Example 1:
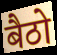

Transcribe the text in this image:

बैठो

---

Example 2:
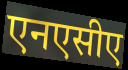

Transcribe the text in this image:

एनएसीए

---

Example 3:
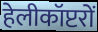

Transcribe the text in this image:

हेलीकॉप्टरों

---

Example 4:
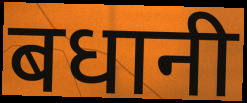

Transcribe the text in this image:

बधानी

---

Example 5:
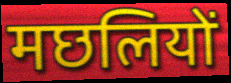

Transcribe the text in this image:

मछलियों